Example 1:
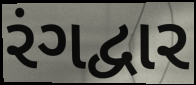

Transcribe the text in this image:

રંગદ્વાર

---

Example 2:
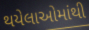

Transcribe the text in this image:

થયેલાઓમાંથી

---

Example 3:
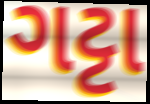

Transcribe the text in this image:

ગટ્ટા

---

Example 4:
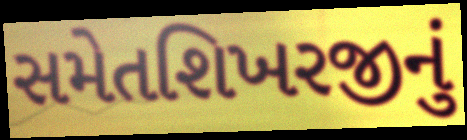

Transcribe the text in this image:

સમેતશિખરજીનું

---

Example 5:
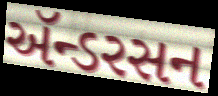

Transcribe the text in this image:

ઍન્ડરસન